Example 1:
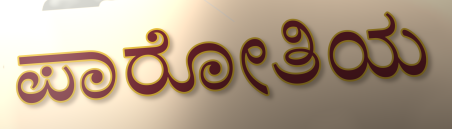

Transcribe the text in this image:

ಪಾರೋತಿಯ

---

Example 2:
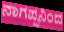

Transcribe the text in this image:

ನಾಗಪ್ಪನಿಂದ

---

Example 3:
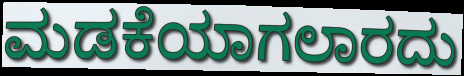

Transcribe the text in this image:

ಮಡಕೆಯಾಗಲಾರದು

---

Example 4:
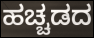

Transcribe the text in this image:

ಹಚ್ಚಡದ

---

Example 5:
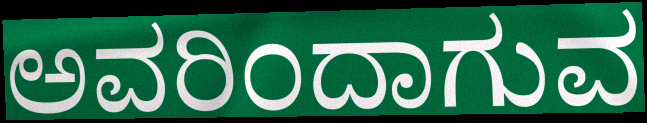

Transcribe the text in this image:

ಅವರಿಂದಾಗುವ